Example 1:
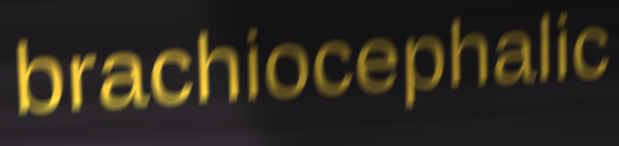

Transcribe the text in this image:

brachiocephalic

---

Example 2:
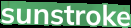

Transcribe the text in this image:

sunstroke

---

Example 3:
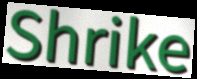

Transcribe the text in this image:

Shrike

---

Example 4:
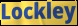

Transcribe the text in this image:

Lockley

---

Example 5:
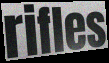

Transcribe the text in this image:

rifles